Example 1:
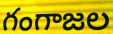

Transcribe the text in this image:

గంగాజల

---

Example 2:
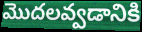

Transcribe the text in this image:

మొదలవ్వడానికి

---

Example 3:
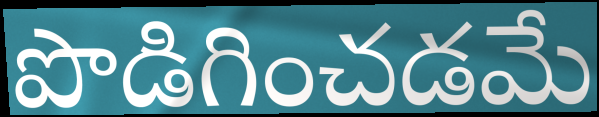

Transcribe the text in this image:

పొడిగించడమే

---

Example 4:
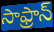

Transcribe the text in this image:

సాఫ్రాన్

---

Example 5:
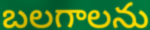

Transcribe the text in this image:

బలగాలను